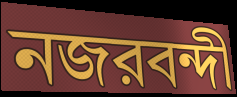
নজরবন্দী